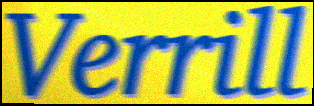
Verrill